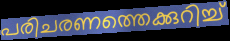
പരിചരണത്തെക്കുറിച്ച്